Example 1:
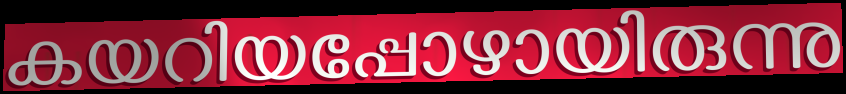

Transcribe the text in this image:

കയറിയപ്പോഴായിരുന്നു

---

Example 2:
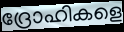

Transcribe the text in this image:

ദ്രോഹികളെ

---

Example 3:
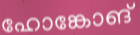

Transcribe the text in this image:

ഹോങ്കോങ്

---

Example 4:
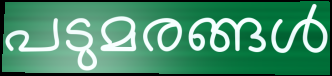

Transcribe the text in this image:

പടുമരങ്ങൾ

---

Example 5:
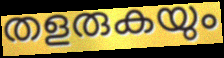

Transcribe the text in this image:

തളരുകയും